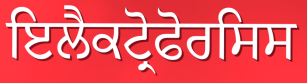
ਇਲੈਕਟ੍ਰੋਫੋਰਸਿਸ